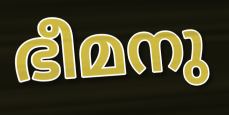
ഭീമനു